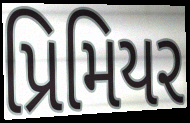
પ્રિમિયર